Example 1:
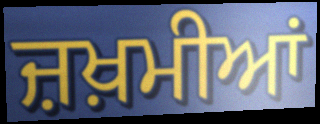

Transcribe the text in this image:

ਜ਼ਖ਼ਮੀਆਂ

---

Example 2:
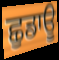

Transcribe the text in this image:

ਛੁਡਾਊ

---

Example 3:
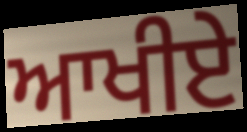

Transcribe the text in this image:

ਆਖੀਏ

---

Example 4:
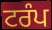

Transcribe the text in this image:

ਟਰੰਪ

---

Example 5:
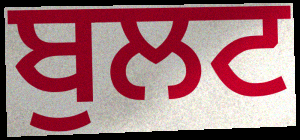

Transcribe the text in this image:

ਬੁਲਟ